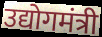
उद्योगमंत्री